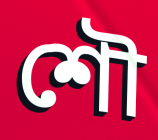
শৌ